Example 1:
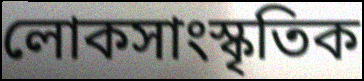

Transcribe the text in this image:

লোকসাংস্কৃতিক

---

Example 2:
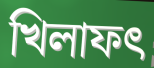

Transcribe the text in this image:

খিলাফৎ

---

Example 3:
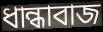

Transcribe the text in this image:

ধান্ধাবাজ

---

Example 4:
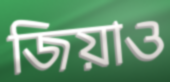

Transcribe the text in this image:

জিয়াও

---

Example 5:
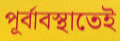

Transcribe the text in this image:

পূর্বাবস্থাতেই